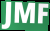
JMF